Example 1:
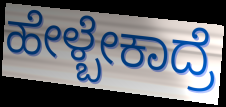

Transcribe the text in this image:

ಹೇಳ್ಬೇಕಾದ್ರೆ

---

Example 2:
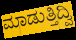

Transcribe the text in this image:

ಮಾಡುತ್ತಿದ್ವಿ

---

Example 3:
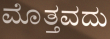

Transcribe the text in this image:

ಮೊತ್ತವದು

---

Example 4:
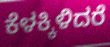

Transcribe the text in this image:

ಕೆಳಕ್ಕಿಳಿದರೆ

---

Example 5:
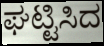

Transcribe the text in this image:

ಘಟ್ಟಿಸಿದ